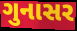
ગુનાસર